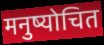
मनुष्योचित